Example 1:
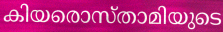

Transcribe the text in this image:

കിയരൊസ്താമിയുടെ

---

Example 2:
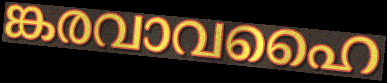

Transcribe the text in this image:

ങ്കരവാവഹൈ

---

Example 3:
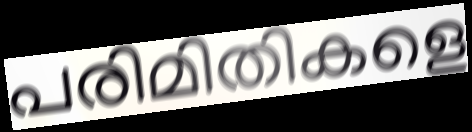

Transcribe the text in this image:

പരിമിതികളെ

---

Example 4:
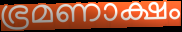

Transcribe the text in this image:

ഭ്രമണാക്ഷം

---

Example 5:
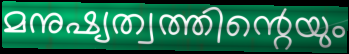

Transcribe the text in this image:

മനുഷ്യത്വത്തിന്റെയും